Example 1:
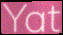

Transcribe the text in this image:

Yat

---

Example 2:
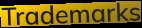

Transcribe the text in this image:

Trademarks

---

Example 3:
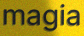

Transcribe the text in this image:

magia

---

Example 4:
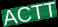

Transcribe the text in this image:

ACTT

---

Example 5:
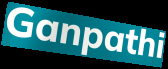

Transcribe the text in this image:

Ganpathi